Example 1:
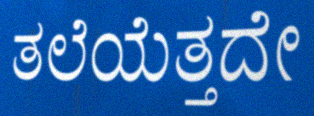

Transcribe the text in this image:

ತಲೆಯೆತ್ತದೇ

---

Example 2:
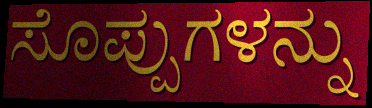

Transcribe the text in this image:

ಸೊಪ್ಪುಗಳನ್ನು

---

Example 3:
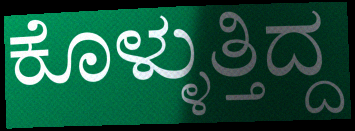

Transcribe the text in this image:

ಕೊಳ್ಳುತ್ತಿದ್ದ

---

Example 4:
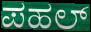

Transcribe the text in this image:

ಪಹಲ್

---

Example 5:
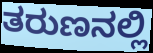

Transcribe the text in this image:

ತರುಣನಲ್ಲಿ